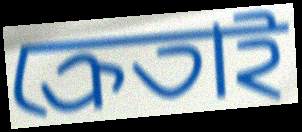
ক্রেতাই